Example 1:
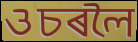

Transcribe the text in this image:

ওচৰলৈ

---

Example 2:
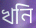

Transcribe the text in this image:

খনি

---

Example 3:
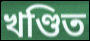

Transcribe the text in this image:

খণ্ডিত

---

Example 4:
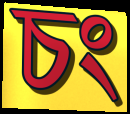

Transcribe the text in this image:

চং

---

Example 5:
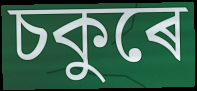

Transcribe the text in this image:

চকুৰে